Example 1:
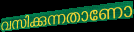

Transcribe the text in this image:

വസിക്കുന്നതാണോ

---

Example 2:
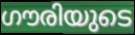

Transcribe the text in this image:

ഗൗരിയുടെ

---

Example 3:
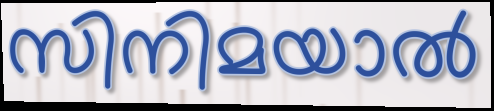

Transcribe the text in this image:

സിനിമയാൽ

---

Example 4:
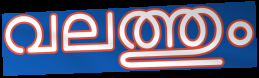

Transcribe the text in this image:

വലത്തും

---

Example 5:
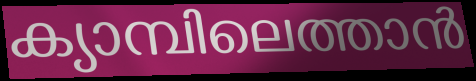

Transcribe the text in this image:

ക്യാമ്പിലെത്താൻ